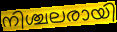
നിശ്ചലരായി